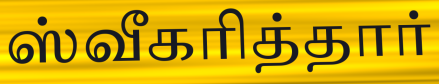
ஸ்வீகரித்தார்